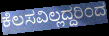
ಕೆಲಸವಿಲ್ಲದ್ದರಿಂದ